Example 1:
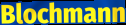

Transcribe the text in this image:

Blochmann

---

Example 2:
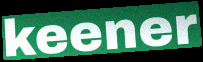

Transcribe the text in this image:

keener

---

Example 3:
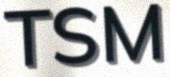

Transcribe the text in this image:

TSM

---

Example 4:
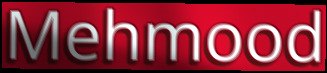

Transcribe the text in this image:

Mehmood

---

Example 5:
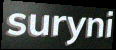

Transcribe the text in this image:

suryni